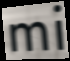
mi